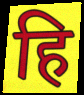
हि